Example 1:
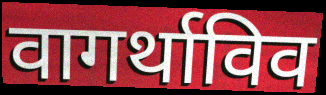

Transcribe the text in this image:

वागर्थाविव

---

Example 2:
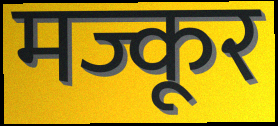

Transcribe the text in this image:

मज्कूर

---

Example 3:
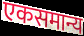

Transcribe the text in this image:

एकसमान्य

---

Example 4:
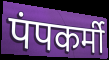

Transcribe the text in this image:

पंपकर्मी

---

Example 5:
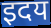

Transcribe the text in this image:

इदय